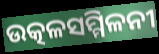
ଉତ୍କଳସମ୍ମିଳନୀ